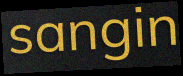
sangin